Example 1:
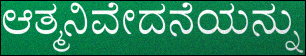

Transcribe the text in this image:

ಆತ್ಮನಿವೇದನೆಯನ್ನು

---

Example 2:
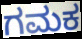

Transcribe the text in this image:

ಗಮಕ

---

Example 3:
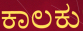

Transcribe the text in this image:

ಕಾಲಕು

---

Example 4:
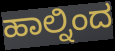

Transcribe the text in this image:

ಹಾಲ್ನಿಂದ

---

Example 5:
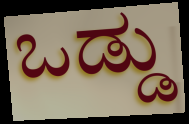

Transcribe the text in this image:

ಒಡ್ಡು